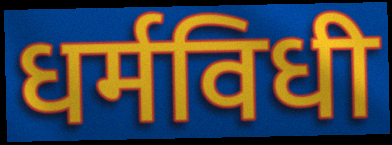
धर्मविधी